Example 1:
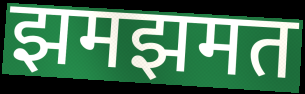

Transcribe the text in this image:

झमझमत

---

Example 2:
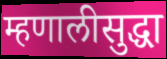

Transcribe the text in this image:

म्हणालीसुद्धा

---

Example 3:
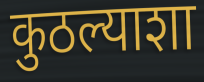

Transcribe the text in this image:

कुठल्याशा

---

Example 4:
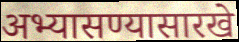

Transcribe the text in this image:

अभ्यासण्यासारखे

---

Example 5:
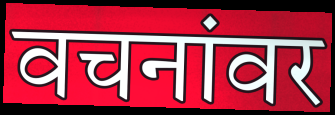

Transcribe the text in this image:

वचनांवर